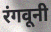
रंगवूनी